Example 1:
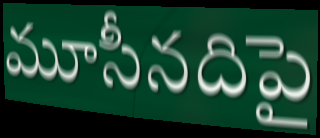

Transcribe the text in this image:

మూసీనదిపై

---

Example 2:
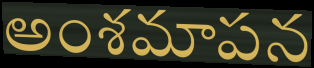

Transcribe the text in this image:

అంశమాపన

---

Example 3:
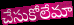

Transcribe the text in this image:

చేసుకోలేమా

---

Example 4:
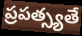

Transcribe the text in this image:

ప్రపత్స్యతే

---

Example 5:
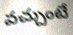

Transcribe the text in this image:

వచ్చుంటే